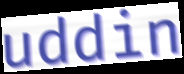
uddin